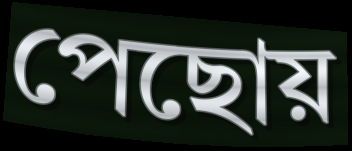
পেছোয়